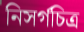
নিসর্গচিত্র